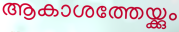
ആകാശത്തേയ്ക്കും